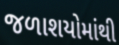
જળાશયોમાંથી